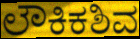
ಲೌಕಿಕಶಿವ